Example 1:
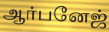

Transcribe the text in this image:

ஆர்பனேஜ்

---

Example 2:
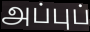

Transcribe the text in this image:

அப்புப்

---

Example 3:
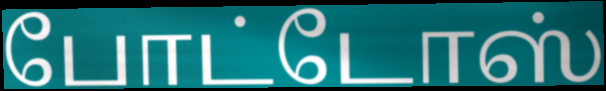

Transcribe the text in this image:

போட்டோஸ்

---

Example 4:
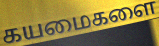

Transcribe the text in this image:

கயமைகளை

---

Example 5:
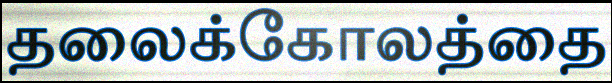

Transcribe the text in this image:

தலைக்கோலத்தை